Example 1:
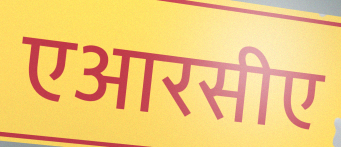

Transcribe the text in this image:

एआरसीए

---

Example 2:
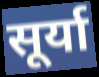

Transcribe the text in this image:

सूर्या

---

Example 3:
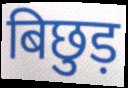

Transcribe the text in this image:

बिछुड़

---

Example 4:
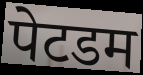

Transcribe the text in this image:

पेटडम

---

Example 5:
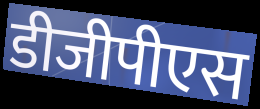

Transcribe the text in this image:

डीजीपीएस